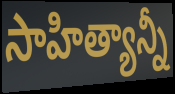
సాహిత్యాన్నీ